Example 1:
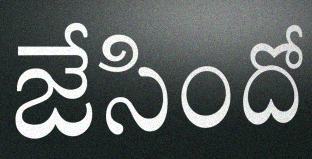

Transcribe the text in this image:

జేసిందో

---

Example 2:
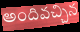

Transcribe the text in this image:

అందివచ్చిన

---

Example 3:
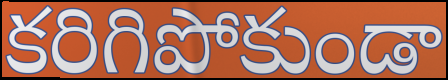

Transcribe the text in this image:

కరిగిపోకుండా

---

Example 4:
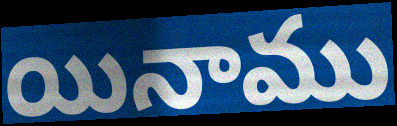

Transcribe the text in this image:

యినాము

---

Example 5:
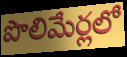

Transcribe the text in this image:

పొలిమేర్లలో